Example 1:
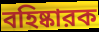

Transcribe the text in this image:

বহিষ্কারক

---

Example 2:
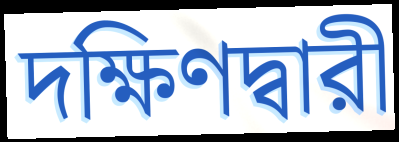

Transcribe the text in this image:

দক্ষিণদ্বারী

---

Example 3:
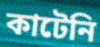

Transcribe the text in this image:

কাটেনি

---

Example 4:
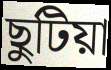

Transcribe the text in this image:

ছুটিয়া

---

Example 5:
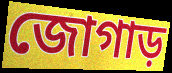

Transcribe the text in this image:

জোগাড়